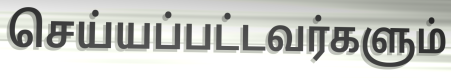
செய்யப்பட்டவர்களும்